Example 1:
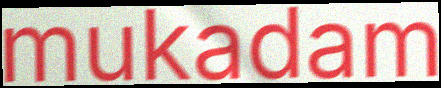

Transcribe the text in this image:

mukadam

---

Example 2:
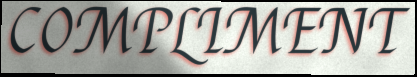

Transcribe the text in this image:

COMPLIMENT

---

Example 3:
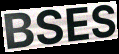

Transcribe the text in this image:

BSES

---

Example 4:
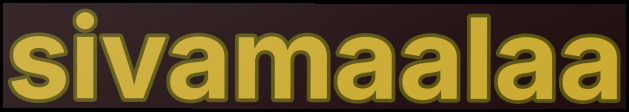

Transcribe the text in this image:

sivamaalaa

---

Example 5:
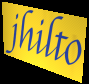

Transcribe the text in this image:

jhilto